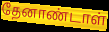
தேனாண்டாள்